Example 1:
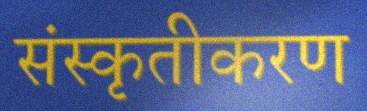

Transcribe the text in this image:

संस्कृतीकरण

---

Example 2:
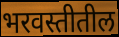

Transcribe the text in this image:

भरवस्तीतील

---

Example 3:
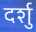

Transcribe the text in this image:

दर्शु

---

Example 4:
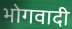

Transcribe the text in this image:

भोगवादी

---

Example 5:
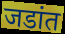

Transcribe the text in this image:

जडांत